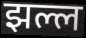
झल्ल